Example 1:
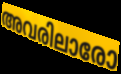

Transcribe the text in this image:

അവരിലാരോ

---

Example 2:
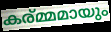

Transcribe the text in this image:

കര്മ്മമായും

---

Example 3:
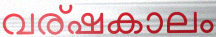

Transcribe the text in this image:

വര്ഷകാലം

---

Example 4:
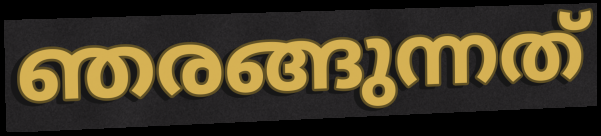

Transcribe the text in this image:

ഞരങ്ങുന്നത്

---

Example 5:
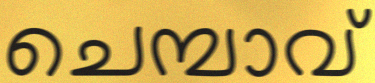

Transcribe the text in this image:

ചെമ്പാവ്